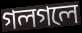
গলগলে